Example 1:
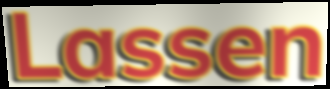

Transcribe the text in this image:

Lassen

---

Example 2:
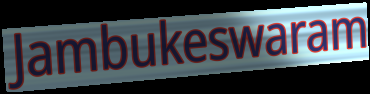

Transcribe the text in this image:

Jambukeswaram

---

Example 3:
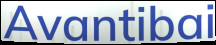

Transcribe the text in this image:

Avantibai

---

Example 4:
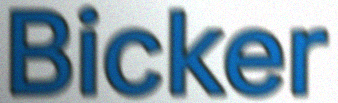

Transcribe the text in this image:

Bicker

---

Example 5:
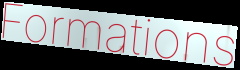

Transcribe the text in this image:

Formations